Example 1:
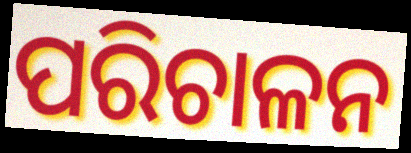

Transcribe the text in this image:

ପରିଚାଳନ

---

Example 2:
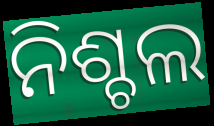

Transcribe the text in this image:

ନିଶ୍ଚଲ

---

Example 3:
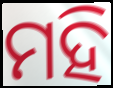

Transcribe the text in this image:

ମହି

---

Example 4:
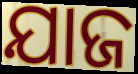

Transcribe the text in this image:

ଯାଜ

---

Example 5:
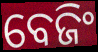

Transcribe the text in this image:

ବେଜିଂ